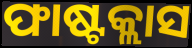
ଫାଷ୍ଟକ୍ଲାସ